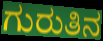
ಗುರುತಿನ